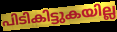
പിടികിട്ടുകയില്ല